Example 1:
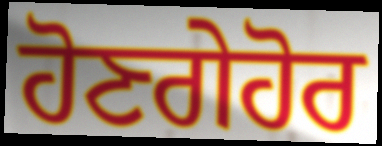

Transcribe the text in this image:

ਹੋਣਗੇਹੋਰ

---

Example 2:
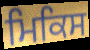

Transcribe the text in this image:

ਮਿਕਿਸ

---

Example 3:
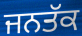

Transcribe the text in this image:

ਜਨਤੱਕ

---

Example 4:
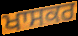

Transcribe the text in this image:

ਖਾਸਕਰ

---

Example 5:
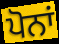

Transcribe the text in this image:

ਪੋਨਾਂ